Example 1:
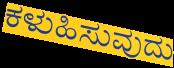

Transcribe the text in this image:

ಕಳುಹಿಸುವುದು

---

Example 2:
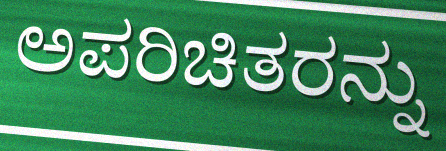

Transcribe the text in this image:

ಅಪರಿಚಿತರನ್ನು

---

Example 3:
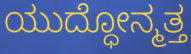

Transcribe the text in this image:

ಯುದ್ಧೋನ್ಮತ್ತ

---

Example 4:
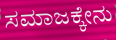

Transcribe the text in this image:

ಸಮಾಜಕ್ಕೇನು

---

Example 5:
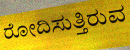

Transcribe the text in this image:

ರೋದಿಸುತ್ತಿರುವ